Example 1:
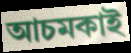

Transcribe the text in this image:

আচমকাই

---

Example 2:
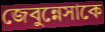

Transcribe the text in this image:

জেবুন্নেসাকে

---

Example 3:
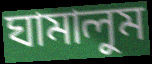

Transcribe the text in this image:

ঘামালুম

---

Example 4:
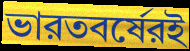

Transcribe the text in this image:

ভারতবর্ষেরই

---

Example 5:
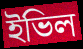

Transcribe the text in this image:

ইভিল